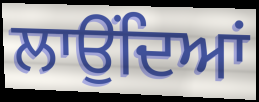
ਲਾਉਂਦਿਆਂ